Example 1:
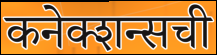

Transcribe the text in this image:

कनेक्शन्सची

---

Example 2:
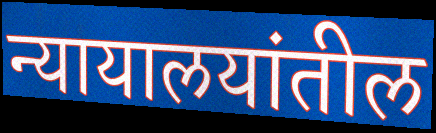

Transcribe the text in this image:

न्यायालयांतील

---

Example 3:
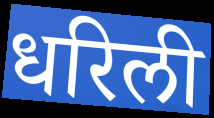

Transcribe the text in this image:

धरिली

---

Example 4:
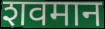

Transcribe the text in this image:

शवमान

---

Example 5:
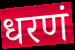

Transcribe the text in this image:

धरणं